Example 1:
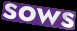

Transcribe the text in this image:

sows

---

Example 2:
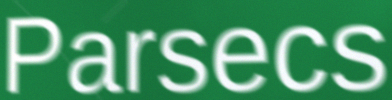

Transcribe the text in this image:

Parsecs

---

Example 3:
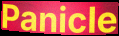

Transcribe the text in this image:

Panicle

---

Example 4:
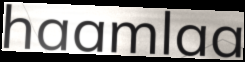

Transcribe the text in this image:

haamlaa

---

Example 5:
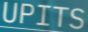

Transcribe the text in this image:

UPITS